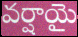
వర్షాయై